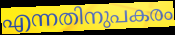
എന്നതിനുപകരം